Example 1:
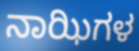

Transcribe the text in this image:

ನಾಝಿಗಳ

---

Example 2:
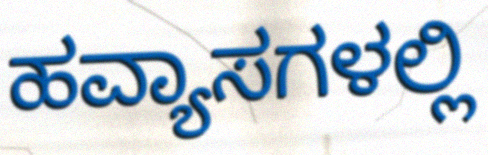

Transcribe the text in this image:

ಹವ್ಯಾಸಗಳಲ್ಲಿ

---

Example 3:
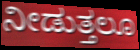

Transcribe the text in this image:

ನೀಡುತ್ತಲೂ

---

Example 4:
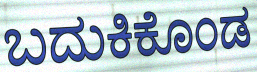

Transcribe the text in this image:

ಬದುಕಿಕೊಂಡ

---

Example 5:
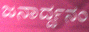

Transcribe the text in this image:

ಜನಾರ್ದ್ದನಂ